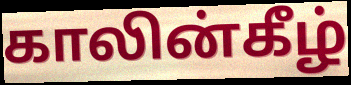
காலின்கீழ்